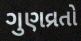
ગુણવ્રતો